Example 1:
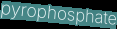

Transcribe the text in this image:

pyrophosphate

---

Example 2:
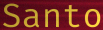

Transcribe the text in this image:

Santo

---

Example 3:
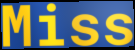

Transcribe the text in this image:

Miss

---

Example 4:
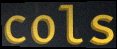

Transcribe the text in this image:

cols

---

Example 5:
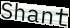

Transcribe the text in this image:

Shant